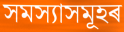
সমস্যাসমূহৰ